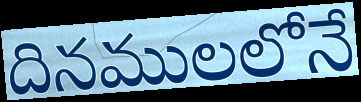
దినములలోనే